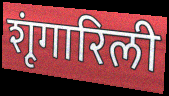
श्रृंगारिली